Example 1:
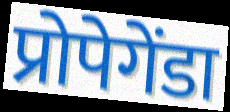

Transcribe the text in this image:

प्रोपेगेंडा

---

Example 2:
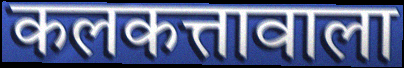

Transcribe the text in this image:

कलकत्तावाला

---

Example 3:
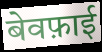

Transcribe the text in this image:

बेवफ़ाई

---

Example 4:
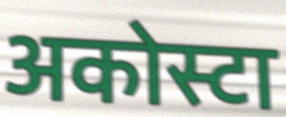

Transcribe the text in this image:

अकोस्टा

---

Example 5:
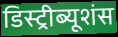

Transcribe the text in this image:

डिस्ट्रीब्यूशंस